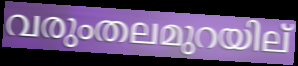
വരുംതലമുറയില്